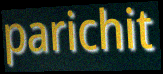
parichit